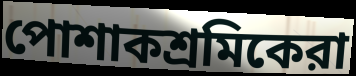
পোশাকশ্রমিকেরা